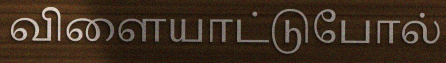
விளையாட்டுபோல்